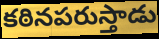
కఠినపరుస్తాడు